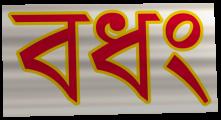
বধং